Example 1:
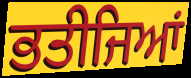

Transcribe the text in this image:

ਭਤੀਜਿਆਂ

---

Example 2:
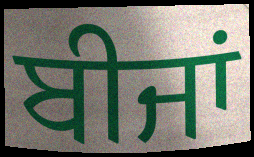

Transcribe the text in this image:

ਬੀਜਾਂ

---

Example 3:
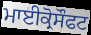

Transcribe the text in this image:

ਮਾਈਕ੍ਰੋਸੌਫਟ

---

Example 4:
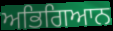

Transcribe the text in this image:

ਅਭਿਗਿਆਨ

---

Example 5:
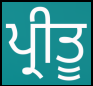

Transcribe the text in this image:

ਪ੍ਰੀਤੂ